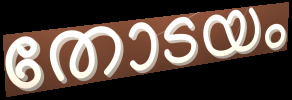
തോടയം